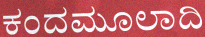
ಕಂದಮೂಲಾದಿ